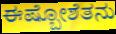
ಈಷ್ಬೋಶೆತನು